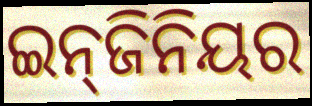
ଇନ୍‌ଜିନିୟର